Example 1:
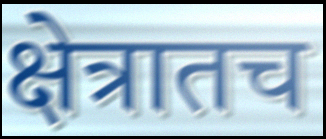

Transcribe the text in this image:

क्षेत्रातच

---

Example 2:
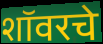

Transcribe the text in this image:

शॉवरचे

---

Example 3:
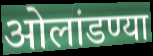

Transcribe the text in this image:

ओलांडण्या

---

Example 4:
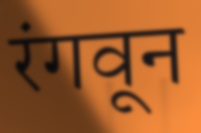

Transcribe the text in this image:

रंगवून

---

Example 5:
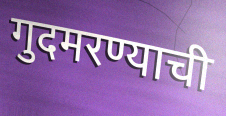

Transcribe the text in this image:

गुदमरण्याची